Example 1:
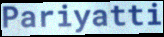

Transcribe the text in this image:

Pariyatti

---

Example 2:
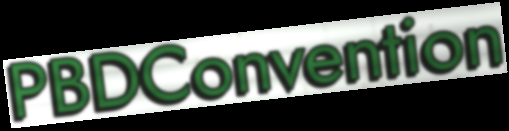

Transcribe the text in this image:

PBDConvention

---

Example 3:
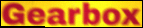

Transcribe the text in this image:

Gearbox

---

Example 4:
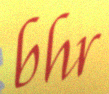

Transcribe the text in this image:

bhr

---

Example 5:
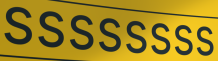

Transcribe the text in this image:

ssssssss